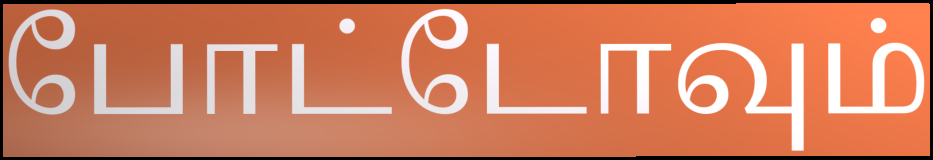
போட்டோவும்